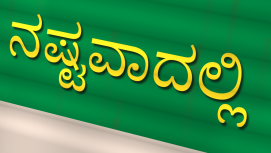
ನಷ್ಟವಾದಲ್ಲಿ